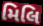
મિલિ